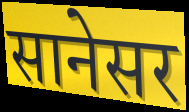
सानेसर